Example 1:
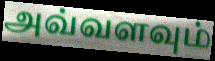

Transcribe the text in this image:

அவ்வளவும்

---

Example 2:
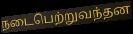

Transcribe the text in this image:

நடைபெற்றுவந்தன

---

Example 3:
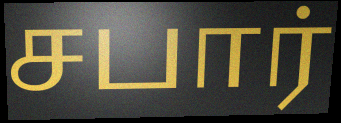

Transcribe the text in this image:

சபார்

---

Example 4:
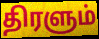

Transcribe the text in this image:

திரளும்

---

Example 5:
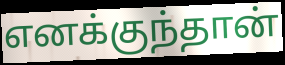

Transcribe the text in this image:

எனக்குந்தான்